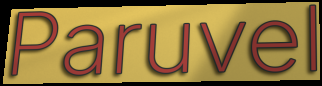
Paruvel